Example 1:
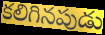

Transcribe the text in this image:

కలిగినపుడు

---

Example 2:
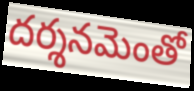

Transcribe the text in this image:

దర్శనమెంతో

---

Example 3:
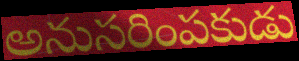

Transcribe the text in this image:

అనుసరింపకుడు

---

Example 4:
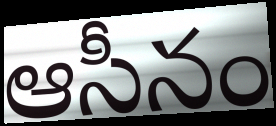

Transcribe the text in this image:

ఆసీనం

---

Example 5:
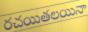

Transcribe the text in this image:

రచయితలయినా